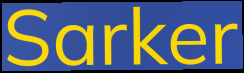
Sarker